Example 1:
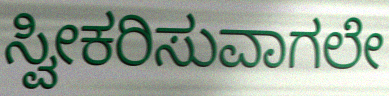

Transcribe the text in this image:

ಸ್ವೀಕರಿಸುವಾಗಲೇ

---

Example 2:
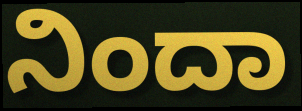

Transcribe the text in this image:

ನಿಂದಾ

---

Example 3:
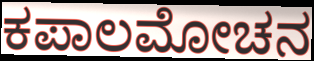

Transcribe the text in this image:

ಕಪಾಲಮೋಚನ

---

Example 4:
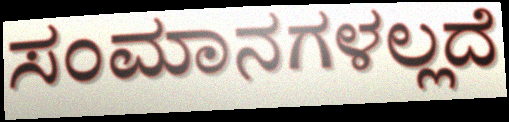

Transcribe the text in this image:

ಸಂಮಾನಗಳಲ್ಲದೆ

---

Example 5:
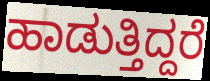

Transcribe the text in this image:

ಹಾಡುತ್ತಿದ್ದರೆ